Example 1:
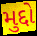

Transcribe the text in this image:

મુદ્દો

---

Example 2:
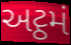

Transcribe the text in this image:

અટ્ઠમં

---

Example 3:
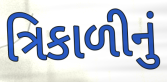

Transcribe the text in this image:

ત્રિકાળીનું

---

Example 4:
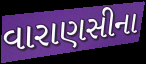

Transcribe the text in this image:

વારાણસીના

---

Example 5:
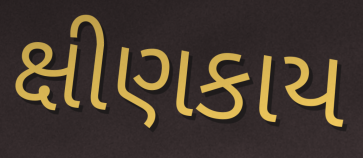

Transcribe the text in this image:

ક્ષીણકાય